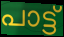
പാട്ട്